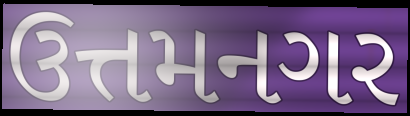
ઉત્તમનગર